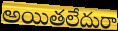
అయితలేదురా